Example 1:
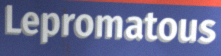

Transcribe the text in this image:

Lepromatous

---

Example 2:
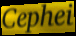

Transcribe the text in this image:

Cephei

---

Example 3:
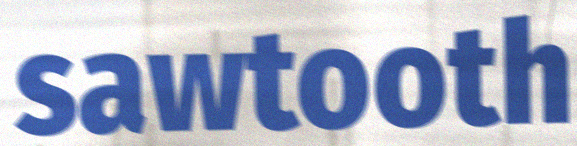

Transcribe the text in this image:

sawtooth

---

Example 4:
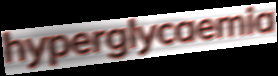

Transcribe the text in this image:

hyperglycaemia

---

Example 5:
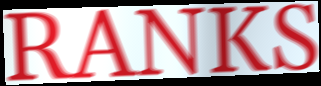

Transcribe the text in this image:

RANKS